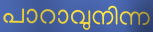
പാറാവുനിന്ന